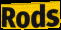
Rods